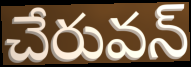
చేరువన్